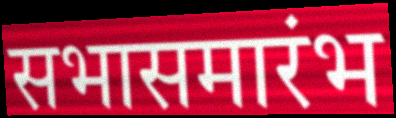
सभासमारंभ